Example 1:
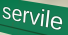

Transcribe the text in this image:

servile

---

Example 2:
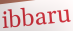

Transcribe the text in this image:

ibbaru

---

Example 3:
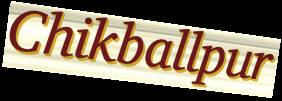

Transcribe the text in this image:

Chikballpur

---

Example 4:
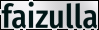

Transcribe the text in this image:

faizulla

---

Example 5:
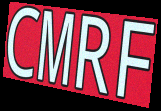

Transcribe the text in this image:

CMRF